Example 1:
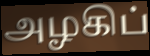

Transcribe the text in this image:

அழகிப்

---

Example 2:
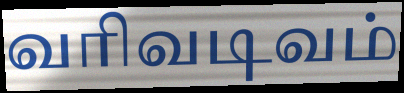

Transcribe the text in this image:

வரிவடிவம்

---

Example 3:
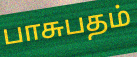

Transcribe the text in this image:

பாசுபதம்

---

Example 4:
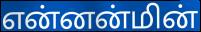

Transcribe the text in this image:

என்னன்மின்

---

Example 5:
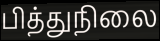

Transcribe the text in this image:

பித்துநிலை